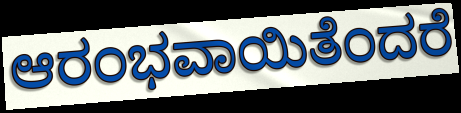
ಆರಂಭವಾಯಿತೆಂದರೆ